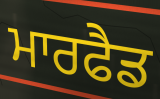
ਮਾਰਫੈਡ